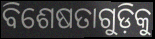
ବିଶେଷତାଗୁଡ଼ିକୁ